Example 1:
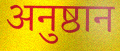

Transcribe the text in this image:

अनुष्ठान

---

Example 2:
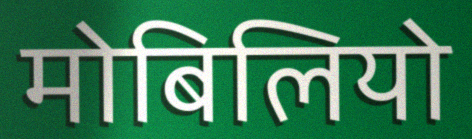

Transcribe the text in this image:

मोबिलियो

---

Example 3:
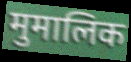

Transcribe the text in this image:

मुमालिक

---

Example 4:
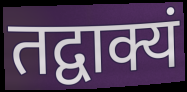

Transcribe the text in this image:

तद्वाक्यं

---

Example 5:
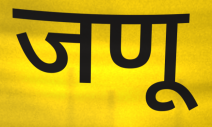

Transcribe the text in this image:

जणू